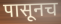
पासूनच